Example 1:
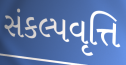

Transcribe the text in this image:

સંકલ્પવૃત્તિ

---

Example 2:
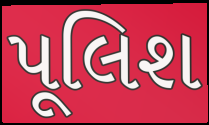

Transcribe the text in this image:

પૂલિશ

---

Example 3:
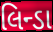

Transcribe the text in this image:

લિન્ડા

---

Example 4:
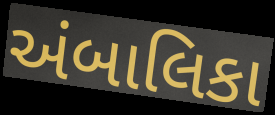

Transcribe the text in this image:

અંબાલિકા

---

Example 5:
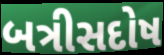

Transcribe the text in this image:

બત્રીસદોષ